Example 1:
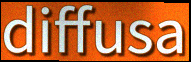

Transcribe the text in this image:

diffusa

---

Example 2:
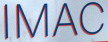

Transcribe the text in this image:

IMAC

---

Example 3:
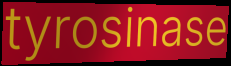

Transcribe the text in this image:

tyrosinase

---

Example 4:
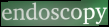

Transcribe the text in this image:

endoscopy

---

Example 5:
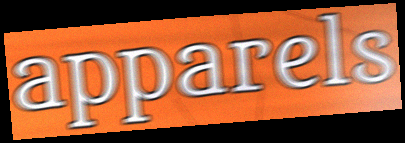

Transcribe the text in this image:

apparels